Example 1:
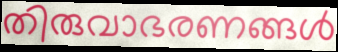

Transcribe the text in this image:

തിരുവാഭരണങ്ങൾ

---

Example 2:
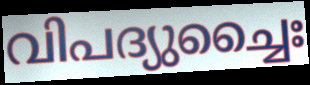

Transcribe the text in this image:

വിപദ്യുച്ചൈഃ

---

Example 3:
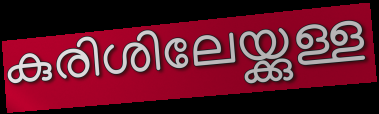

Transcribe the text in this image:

കുരിശിലേയ്ക്കുള്ള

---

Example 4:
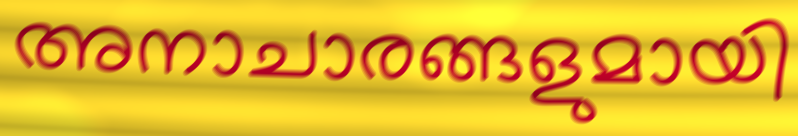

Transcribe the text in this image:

അനാചാരങ്ങളുമായി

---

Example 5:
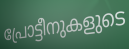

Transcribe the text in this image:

പ്രോട്ടീനുകളുടെ